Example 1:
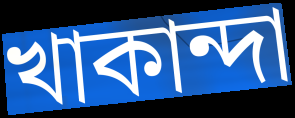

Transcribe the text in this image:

খাকান্দা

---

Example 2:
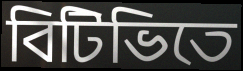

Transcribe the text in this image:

বিটিভিতে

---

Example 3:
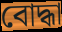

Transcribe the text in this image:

বোদ্ধা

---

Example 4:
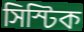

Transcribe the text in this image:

সিস্টিক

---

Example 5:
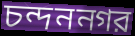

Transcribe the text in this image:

চন্দননগর